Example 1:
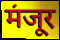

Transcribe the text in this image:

मंजूर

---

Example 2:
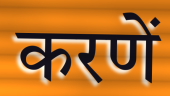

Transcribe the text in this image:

करणें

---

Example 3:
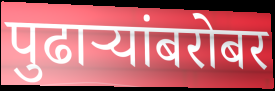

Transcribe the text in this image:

पुढाऱ्यांबरोबर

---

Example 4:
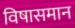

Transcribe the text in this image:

विषासमान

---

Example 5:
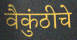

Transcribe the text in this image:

वैकुंठीचे